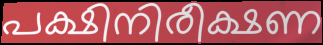
പക്ഷിനിരീക്ഷണ